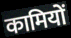
कामियों